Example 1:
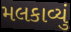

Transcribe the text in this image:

મલકાવ્યું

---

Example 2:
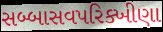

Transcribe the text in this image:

સબ્બાસવપરિક્ખીણા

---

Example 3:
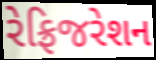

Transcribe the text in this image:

રેફ્રિજરેશન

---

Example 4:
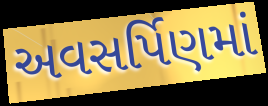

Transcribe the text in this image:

અવસર્પિણમાં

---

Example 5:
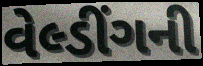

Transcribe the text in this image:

વેલ્ડીંગની